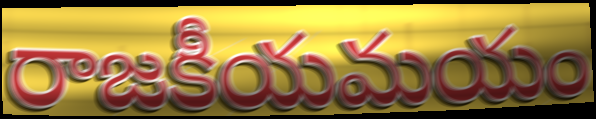
రాజకీయమయం